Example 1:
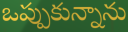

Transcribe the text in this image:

ఒప్పుకున్నాను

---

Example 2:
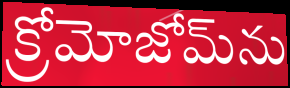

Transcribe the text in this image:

క్రోమోజోమ్‌ను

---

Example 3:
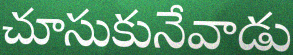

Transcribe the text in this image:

చూసుకునేవాడు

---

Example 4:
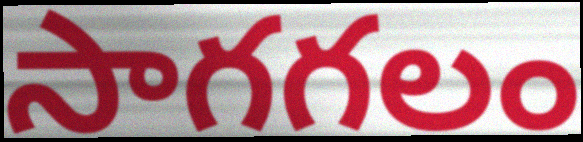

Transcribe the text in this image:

సాగగలం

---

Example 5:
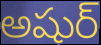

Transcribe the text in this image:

అషుర్